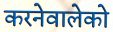
करनेवालेको